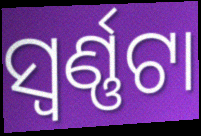
ସ୍ୱର୍ଣ୍ଣଟା